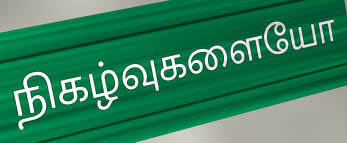
நிகழ்வுகளையோ